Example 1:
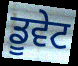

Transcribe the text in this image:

ਡੂਵੇਟ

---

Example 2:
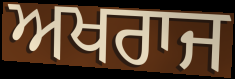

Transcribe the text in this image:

ਅਖਰਾਜ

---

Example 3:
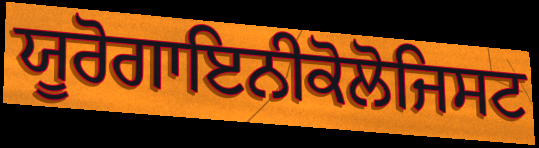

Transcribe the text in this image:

ਯੂਰੋਗਾਇਨੀਕੋਲੋਜਿਸਟ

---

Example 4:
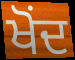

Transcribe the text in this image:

ਖੋਂਦ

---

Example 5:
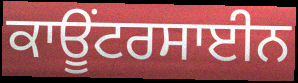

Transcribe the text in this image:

ਕਾਊਂਟਰਸਾਈਨ